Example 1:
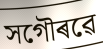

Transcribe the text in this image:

সগৌৰৱে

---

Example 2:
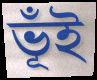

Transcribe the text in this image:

ভূঁই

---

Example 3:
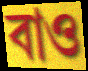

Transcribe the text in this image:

বাও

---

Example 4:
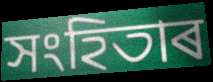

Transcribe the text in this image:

সংহিতাৰ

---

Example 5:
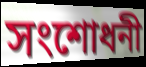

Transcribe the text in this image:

সংশোধনী